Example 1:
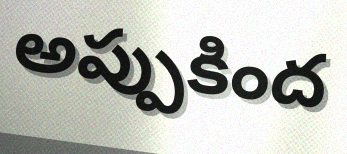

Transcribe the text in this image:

అప్పుకింద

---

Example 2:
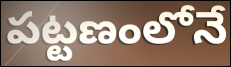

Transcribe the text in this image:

పట్టణంలోనే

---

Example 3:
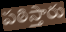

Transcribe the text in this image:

పఠిస్తారు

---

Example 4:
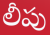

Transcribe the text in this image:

లీపు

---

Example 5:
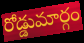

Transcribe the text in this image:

రోడ్డుమార్గం